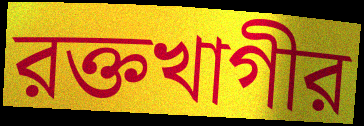
রক্তখাগীর